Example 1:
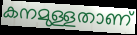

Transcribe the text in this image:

കനമുള്ളതാണ്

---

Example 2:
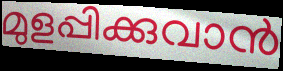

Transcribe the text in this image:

മുളപ്പിക്കുവാൻ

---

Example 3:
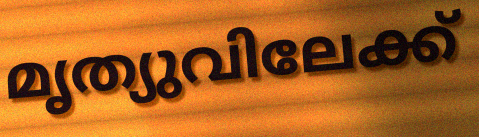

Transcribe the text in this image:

മൃത്യുവിലേക്ക്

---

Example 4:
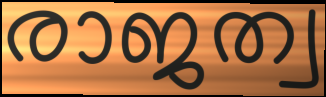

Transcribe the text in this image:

രാജത്വ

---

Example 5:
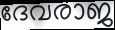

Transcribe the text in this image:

ദേവരാജ